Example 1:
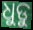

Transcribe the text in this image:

ଧୁଡୁ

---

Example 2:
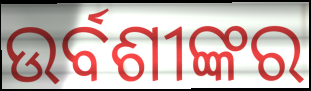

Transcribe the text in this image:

ଉର୍ବଶୀଙ୍କର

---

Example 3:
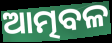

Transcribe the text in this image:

ଆତ୍ମବଳ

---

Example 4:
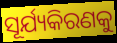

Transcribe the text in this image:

ସୂର୍ଯ୍ୟକିରଣକୁ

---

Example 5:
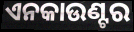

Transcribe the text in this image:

ଏନକାଉଣ୍ଟର